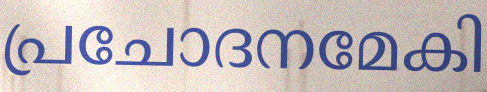
പ്രചോദനമേകി